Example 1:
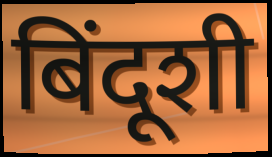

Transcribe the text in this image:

बिंदूशी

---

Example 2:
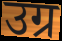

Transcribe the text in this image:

उग्र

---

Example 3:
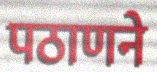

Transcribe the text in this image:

पठाणने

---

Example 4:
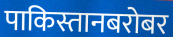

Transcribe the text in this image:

पाकिस्तानबरोबर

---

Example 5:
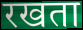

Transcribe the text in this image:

रखता